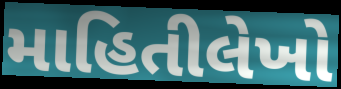
માહિતીલેખો